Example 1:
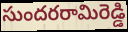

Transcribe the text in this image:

సుందరరామిరెడ్డి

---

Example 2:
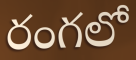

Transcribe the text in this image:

రంగలో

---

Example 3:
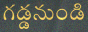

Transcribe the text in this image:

గడ్డనుండి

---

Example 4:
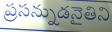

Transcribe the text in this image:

ప్రసన్నుడనైతిని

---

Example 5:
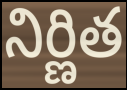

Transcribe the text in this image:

నిర్ణిత